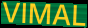
VIMAL